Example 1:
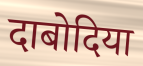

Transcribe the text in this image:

दाबोदिया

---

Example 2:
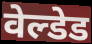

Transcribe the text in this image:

वेल्डेड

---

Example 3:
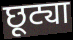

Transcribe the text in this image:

छूट्या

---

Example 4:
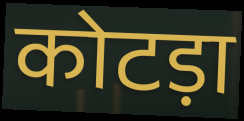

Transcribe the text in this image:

कोटड़ा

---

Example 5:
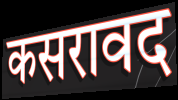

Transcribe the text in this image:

कसरावद